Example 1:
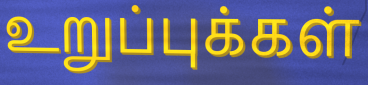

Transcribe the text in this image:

உறுப்புக்கள்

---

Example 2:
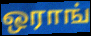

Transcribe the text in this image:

ஒராங்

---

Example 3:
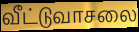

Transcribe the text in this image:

வீட்டுவாசலை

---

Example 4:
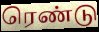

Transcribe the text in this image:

ரெண்டு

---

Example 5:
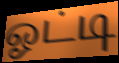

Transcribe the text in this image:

ஓட்டி